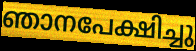
ഞാനപേക്ഷിച്ചു